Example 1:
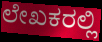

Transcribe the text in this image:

ಲೇಖಕರಲ್ಲಿ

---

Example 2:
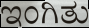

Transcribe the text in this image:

ಇಂಗಿತು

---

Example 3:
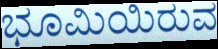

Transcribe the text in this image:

ಭೂಮಿಯಿರುವ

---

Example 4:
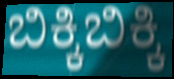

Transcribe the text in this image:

ಬಿಕ್ಕಿಬಿಕ್ಕಿ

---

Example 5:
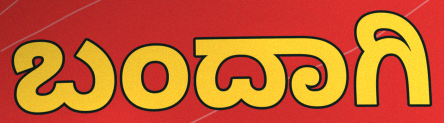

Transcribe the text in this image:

ಬಂದಾಗಿ